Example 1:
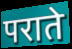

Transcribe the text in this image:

पराते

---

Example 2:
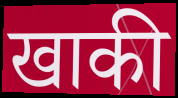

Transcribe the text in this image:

खाकी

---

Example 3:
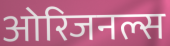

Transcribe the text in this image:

ओरिजनल्स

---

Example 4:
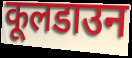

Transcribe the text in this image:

कूलडाउन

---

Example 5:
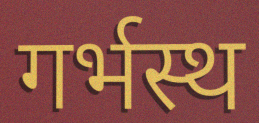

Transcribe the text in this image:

गर्भस्थ